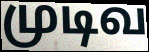
முடிவ